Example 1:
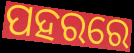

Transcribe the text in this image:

ପହରରେ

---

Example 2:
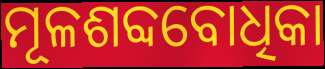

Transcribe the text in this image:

ମୂଳଶବ୍ଦବୋଧିକା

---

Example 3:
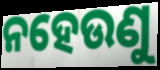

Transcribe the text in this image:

ନହେଉଣୁ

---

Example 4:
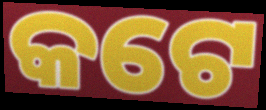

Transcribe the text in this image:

କଟେ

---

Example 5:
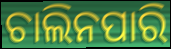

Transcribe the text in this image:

ଚାଲିନପାରି